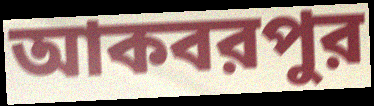
আকবরপুর